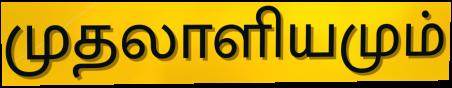
முதலாளியமும்